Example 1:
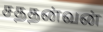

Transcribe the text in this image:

சததன்வன்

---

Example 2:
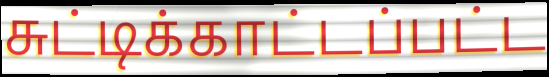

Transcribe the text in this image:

சுட்டிக்காட்டப்பட்ட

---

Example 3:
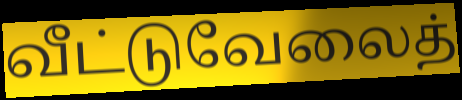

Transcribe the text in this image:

வீட்டுவேலைத்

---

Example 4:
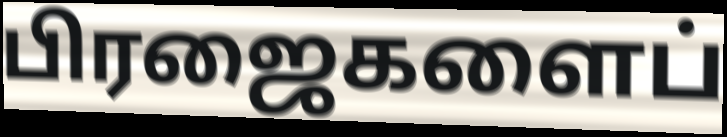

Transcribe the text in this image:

பிரஜைகளைப்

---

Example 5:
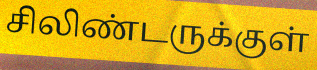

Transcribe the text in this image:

சிலிண்டருக்குள்